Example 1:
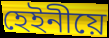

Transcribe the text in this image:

হেইনীয়ে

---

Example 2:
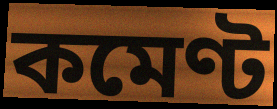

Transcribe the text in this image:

কমেণ্ট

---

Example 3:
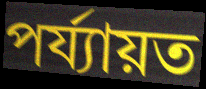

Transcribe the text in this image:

পৰ্য্যায়ত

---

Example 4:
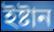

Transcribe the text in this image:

ইষ্টান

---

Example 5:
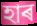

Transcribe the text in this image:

হাৰ